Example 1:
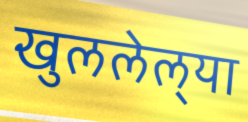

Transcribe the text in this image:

खुललेल्या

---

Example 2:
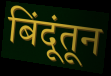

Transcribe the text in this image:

बिंदूंतून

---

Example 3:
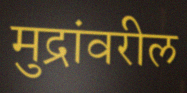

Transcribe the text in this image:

मुद्रांवरील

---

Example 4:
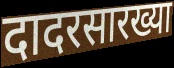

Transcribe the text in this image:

दादरसारख्या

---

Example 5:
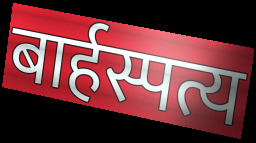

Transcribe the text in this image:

बार्हस्पत्य